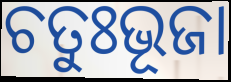
ଚତୁଃଭୂଜା